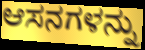
ಆಸನಗಳನ್ನು